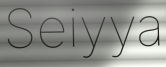
Seiyya